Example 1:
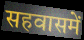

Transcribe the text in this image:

सहवासमें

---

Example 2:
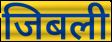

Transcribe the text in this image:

जिबली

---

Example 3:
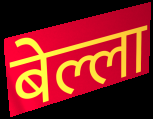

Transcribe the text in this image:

बेल्ला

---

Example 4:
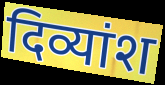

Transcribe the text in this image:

दिव्यांश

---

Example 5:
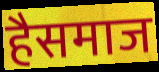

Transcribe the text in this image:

हैसमाज